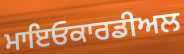
ਮਾਇਓਕਾਰਡੀਅਲ